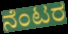
ನೆಂಟರ